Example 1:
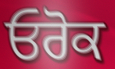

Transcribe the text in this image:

ਓਰੋਕ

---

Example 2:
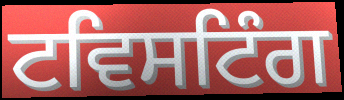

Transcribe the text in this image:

ਟਵਿਸਟਿੰਗ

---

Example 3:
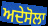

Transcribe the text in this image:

ਅਦੇਸੋਲਾ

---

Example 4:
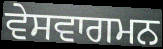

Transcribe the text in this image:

ਵੇਸਵਾਗਮਨ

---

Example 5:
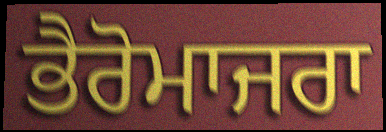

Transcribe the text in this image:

ਭੈਰੋਮਾਜਰਾ